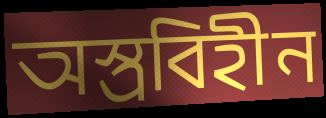
অস্ত্রবিহীন